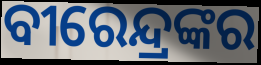
ବୀରେନ୍ଦ୍ରଙ୍କର